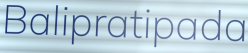
Balipratipada